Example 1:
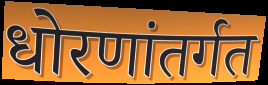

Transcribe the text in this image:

धोरणांतर्गत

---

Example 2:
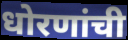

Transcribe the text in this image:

धोरणांची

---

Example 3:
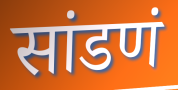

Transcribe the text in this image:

सांडणं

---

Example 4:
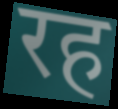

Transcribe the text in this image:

रह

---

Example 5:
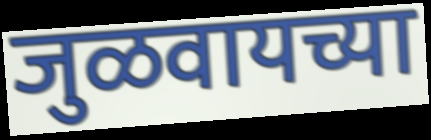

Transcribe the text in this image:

जुळवायच्या